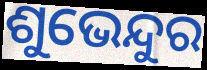
ଶୁଭେନ୍ଦୁର